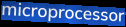
microprocessor